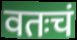
वतःचं